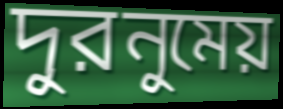
দুরনুমেয়